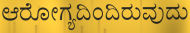
ಆರೋಗ್ಯದಿಂದಿರುವುದು